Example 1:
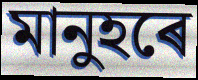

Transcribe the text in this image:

মানুহৰে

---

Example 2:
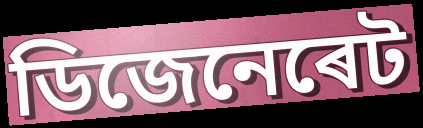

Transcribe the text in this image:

ডিজেনেৰেট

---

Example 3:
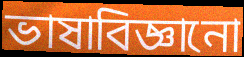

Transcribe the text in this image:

ভাষাবিজ্ঞানো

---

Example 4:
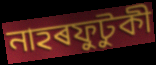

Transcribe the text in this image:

নাহৰফুটুকী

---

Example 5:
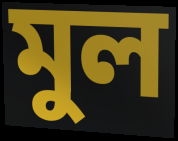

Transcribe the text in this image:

মুল